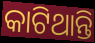
କାଟିଥାନ୍ତି